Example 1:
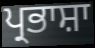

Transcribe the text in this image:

ਪ੍ਰਭਾਸ਼ਾ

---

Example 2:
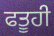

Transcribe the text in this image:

ਫਤੂਹੀ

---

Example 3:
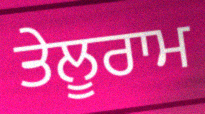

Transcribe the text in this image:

ਤੇਲੂਰਾਮ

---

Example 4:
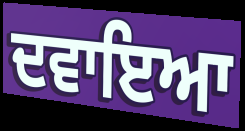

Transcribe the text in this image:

ਦਵਾਇਆ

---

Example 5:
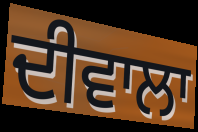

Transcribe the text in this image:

ਦੀਵਾਲਾ